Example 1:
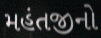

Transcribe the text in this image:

મહંતજીનો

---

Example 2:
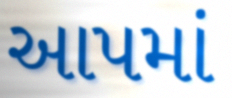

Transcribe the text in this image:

આપમાં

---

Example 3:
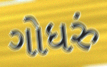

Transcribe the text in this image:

ગોધરું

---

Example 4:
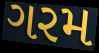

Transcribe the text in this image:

ગરમ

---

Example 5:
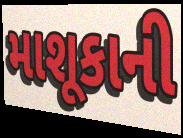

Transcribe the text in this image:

માશૂકાની